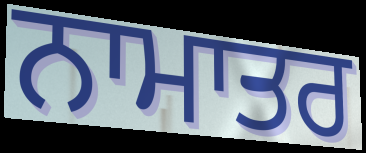
ਨਾਮਾਤਰ